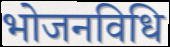
भोजनविधि